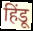
हिंडू